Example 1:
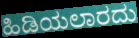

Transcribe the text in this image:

ಹಿಡಿಯಲಾರದು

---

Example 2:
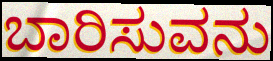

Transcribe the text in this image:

ಬಾರಿಸುವನು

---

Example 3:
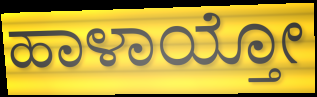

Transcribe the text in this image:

ಹಾಳಾಯ್ತೋ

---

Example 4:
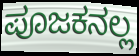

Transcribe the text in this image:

ಪೂಜಕನಲ್ಲ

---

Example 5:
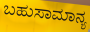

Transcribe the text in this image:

ಬಹುಸಾಮಾನ್ಯ